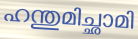
ഹന്തുമിച്ഛാമി